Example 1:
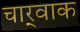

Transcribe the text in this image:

चार्वाक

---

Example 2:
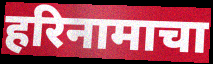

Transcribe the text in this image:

हरिनामाचा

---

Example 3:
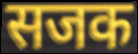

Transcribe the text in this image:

सजक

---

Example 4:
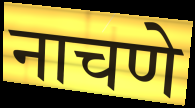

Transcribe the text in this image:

नाचणे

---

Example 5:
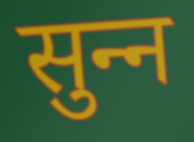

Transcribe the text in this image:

सुन्‍न